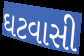
ઘટવાસી